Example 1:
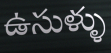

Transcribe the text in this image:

ఉసుళ్ళు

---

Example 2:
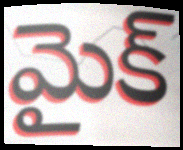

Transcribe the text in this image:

మైక్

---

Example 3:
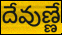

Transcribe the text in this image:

దేవుణ్ణే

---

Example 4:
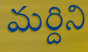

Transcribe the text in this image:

మర్దిని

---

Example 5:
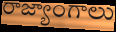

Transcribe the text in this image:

రాజ్యాంగాలు